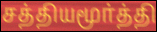
சத்தியமூர்த்தி